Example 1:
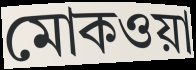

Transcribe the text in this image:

মোকওয়া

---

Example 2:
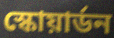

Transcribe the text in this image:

স্কোয়ার্ডন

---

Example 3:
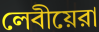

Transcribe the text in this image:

লেবীয়েরা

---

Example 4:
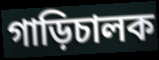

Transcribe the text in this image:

গাড়িচালক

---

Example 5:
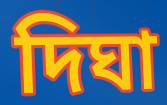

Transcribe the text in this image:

দিঘা